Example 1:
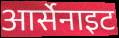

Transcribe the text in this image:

आर्सेनाइट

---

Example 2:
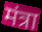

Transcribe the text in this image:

मंत्रा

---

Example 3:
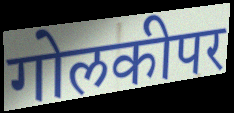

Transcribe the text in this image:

गोलकीपर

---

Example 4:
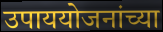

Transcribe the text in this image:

उपाययोजनांच्या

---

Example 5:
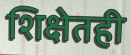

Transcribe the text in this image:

शिक्षेतही